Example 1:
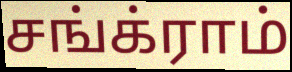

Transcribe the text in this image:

சங்க்ராம்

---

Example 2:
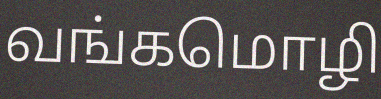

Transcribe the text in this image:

வங்கமொழி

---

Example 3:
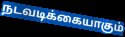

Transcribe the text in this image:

நடவடிக்கையாகும்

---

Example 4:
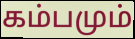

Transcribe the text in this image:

கம்பமும்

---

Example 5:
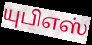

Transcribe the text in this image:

யுபிஎஸ்